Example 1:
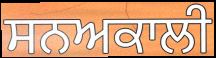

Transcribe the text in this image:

ਸਨਅਕਾਲੀ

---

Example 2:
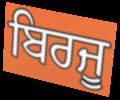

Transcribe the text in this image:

ਬਿਰਜੂ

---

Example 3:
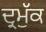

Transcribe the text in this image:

ਦ੍ਰਮੁੱਕ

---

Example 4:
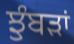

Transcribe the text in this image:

ਝੁੰਬੜਾਂ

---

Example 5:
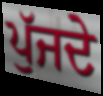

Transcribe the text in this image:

ਪੁੱਜਦੇ